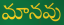
మానవు